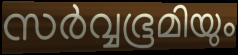
സർവ്വഭൂമിയും